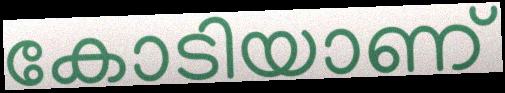
കോടിയാണ്